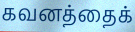
கவனத்தைக்